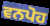
ਵਨਪੋਹ